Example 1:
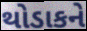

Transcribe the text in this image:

થોડાકને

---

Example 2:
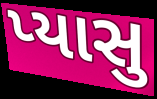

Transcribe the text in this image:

પ્યાસુ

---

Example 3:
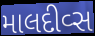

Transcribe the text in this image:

માલદીવ્સ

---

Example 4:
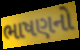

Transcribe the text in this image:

ભાષણનો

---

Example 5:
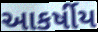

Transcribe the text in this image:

આકર્ષીય